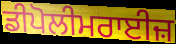
ਡੀਪੋਲੀਮਰਾਈਜ਼